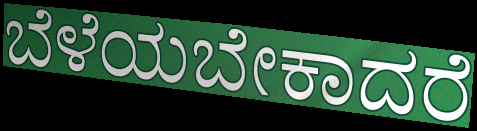
ಬೆಳೆಯಬೇಕಾದರೆ